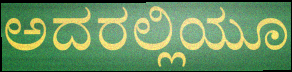
ಅದರಲ್ಲಿಯೂ